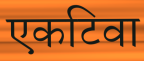
एकटिवा